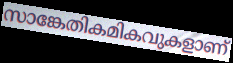
സാങ്കേതികമികവുകളാണ്